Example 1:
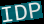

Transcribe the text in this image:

IDP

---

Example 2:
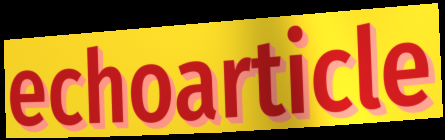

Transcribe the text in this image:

echoarticle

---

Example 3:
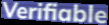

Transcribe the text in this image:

Verifiable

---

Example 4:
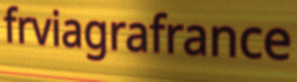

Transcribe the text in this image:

frviagrafrance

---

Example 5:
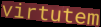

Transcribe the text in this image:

virtutem